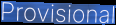
Provisional